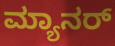
ಮ್ಯಾನರ್